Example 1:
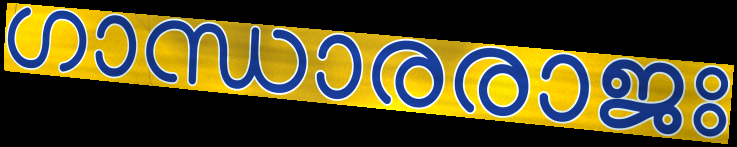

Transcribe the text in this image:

ഗാന്ധാരരാജഃ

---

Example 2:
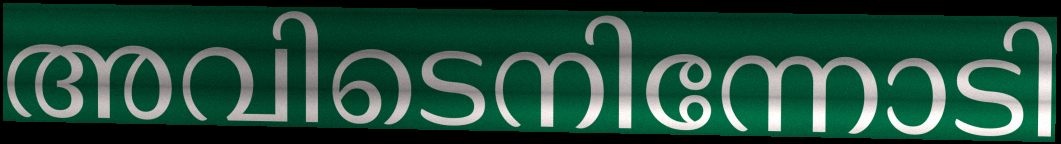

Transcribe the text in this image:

അവിടെനിന്നോടി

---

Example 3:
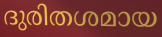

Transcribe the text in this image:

ദുരിതശമായ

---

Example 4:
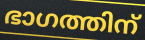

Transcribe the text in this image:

ഭാഗത്തിന്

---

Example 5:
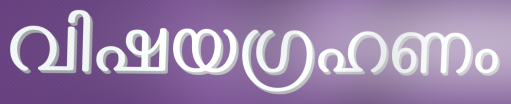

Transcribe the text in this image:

വിഷയഗ്രഹണം